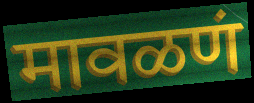
मावळणं